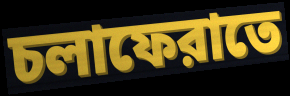
চলাফেরাতে